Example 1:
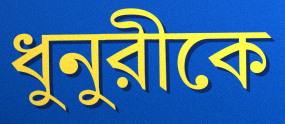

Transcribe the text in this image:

ধুনুরীকে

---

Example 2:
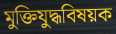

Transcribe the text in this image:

মুক্তিযুদ্ধবিষয়ক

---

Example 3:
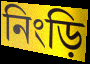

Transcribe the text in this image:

নিংড়ি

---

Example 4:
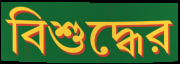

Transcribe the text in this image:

বিশুদ্ধের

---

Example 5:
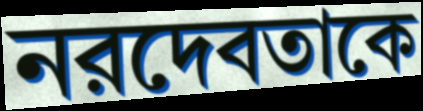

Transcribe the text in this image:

নরদেবতাকে